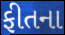
ફીતના